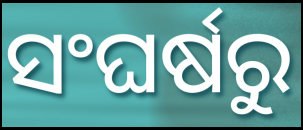
ସଂଘର୍ଷରୁ